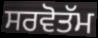
ਸਰਵੋਤੱਮ